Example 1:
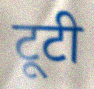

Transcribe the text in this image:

टूटी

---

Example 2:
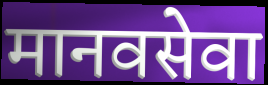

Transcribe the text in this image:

मानवसेवा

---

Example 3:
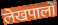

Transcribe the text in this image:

लेखपालों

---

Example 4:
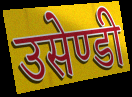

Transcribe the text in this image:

उसेण्डी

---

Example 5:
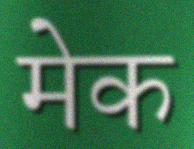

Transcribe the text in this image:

मेक